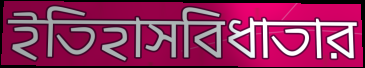
ইতিহাসবিধাতার